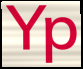
Yp